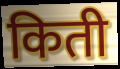
किती